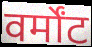
वर्मोंट